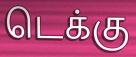
டெக்கு